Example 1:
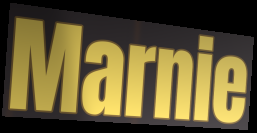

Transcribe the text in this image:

Marnie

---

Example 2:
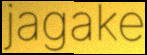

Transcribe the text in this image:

jagake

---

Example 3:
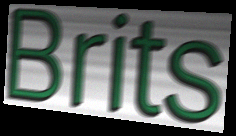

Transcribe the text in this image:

Brits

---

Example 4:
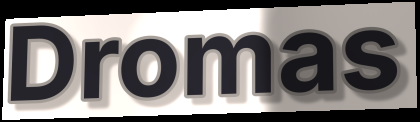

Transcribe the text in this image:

Dromas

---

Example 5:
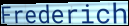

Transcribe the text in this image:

Frederich